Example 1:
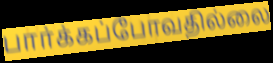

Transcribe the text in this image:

பார்க்கப்போவதில்லை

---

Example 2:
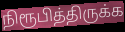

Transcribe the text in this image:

நிரூபித்திருக்க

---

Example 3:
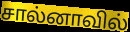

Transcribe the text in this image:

சால்னாவில்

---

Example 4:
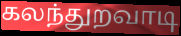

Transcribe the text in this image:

கலந்துறவாடி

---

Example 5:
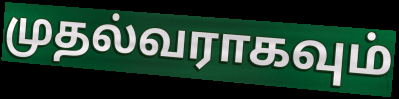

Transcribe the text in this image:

முதல்வராகவும்